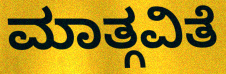
ಮಾತ್ಗವಿತೆ